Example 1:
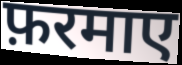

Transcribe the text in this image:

फ़रमाए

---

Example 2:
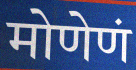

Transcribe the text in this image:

मोणेणं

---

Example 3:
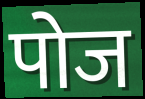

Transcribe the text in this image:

पोज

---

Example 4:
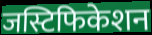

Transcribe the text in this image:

जस्टिफिकेशन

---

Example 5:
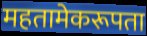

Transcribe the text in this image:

महतामेकरूपता